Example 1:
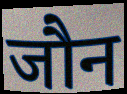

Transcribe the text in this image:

जौन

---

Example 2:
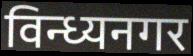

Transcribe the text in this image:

विन्ध्यनगर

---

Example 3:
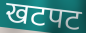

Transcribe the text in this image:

खटपट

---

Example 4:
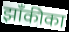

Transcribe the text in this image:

झाँकीका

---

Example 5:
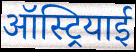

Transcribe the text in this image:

ऑस्ट्रियाई